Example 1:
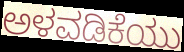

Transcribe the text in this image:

ಅಳವಡಿಕೆಯು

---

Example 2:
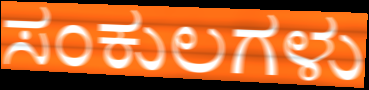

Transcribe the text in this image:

ಸಂಕುಲಗಳು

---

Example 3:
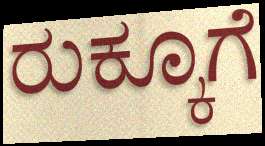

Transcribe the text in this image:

ರುಕ್ಕೂಗೆ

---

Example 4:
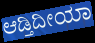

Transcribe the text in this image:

ಆಡ್ತಿದೀಯಾ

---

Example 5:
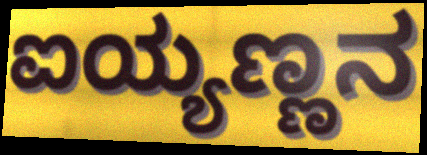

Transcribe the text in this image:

ಐಯ್ಯಣ್ಣನ